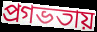
প্রগভতায়